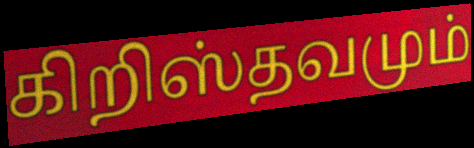
கிறிஸ்தவமும்